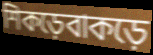
শিকড়েবাকড়ে